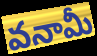
వనామీ